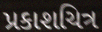
પ્રકાશચિત્ર